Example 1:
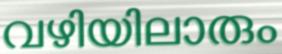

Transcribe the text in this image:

വഴിയിലാരും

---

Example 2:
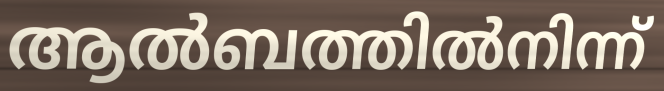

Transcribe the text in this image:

ആൽബത്തിൽനിന്ന്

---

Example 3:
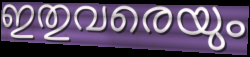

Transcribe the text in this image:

ഇതുവരെയും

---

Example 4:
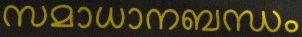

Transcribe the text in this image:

സമാധാനബന്ധം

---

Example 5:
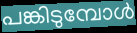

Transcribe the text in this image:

പങ്കിടുമ്പോൾ